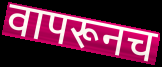
वापरूनच